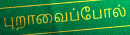
புறாவைப்போல்